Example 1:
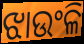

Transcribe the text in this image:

ଝାଉଂଳି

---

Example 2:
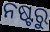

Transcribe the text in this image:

ନଷ୍ଟରୁ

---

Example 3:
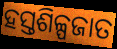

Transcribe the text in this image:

ହସ୍ତଶିଳ୍ପଜାତ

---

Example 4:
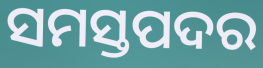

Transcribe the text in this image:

ସମସ୍ତପଦର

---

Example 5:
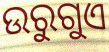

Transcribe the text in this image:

ଉରୁଗୁଏ